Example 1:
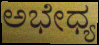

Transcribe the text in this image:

ಅಭೇಧ್ಯ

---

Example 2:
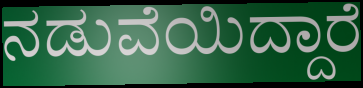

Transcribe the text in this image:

ನಡುವೆಯಿದ್ದಾರೆ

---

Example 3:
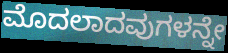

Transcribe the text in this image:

ಮೊದಲಾದವುಗಳನ್ನೇ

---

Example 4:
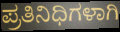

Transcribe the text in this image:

ಪ್ರತಿನಿಧಿಗಳಾಗಿ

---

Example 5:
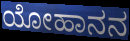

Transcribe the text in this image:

ಯೋಹಾನನ